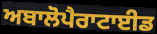
ਅਬਾਲੋਪੈਰਾਟਾਈਡ